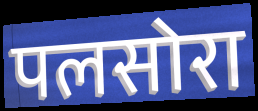
पलसोरा